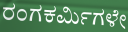
ರಂಗಕರ್ಮಿಗಳೇ